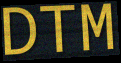
DTM